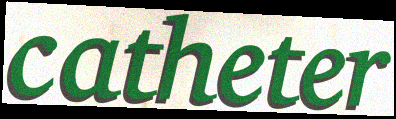
catheter